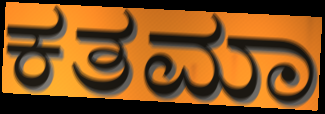
ಕತಮಾ